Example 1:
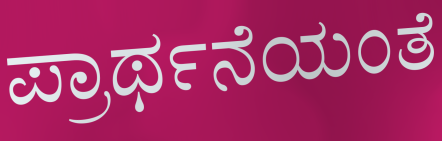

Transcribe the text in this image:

ಪ್ರಾರ್ಥನೆಯಂತೆ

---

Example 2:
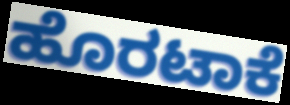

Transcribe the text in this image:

ಹೊರಟಾಕೆ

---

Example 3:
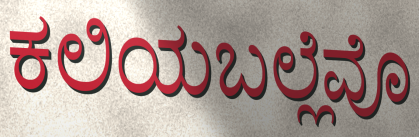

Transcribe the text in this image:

ಕಲಿಯಬಲ್ಲೆವೊ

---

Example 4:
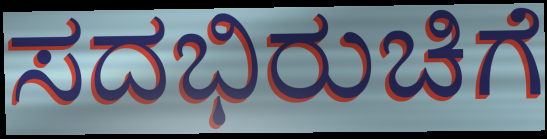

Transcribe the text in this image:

ಸದಭಿರುಚಿಗೆ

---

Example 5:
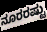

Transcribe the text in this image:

ನೂರರಷ್ಟು